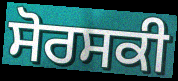
ਸੋਰਸਕੀ